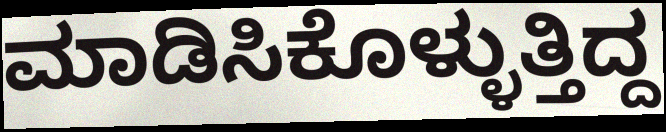
ಮಾಡಿಸಿಕೊಳ್ಳುತ್ತಿದ್ದ